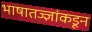
भाषातज्ज्ञांकडून